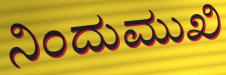
ನಿಂದುಮುಖಿ